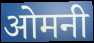
ओमनी